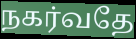
நகர்வதே